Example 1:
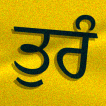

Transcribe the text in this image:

ਤੁਰੰ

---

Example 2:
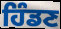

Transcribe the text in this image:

ਹਿੰਡਣ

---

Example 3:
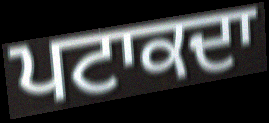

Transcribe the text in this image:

ਪਟਾਕਦਾ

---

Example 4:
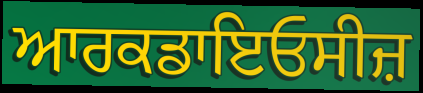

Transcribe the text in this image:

ਆਰਕਡਾਇਓਸੀਜ਼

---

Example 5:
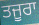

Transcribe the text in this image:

ਤਜੂਰਾ